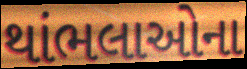
થાંભલાઓના